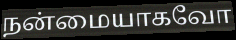
நன்மையாகவோ